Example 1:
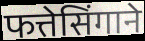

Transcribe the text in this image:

फत्तेसिंगाने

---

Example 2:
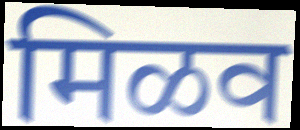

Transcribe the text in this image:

मिळव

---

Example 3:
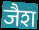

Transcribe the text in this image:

जैश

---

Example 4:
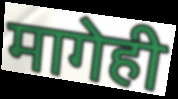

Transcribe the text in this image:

मागेही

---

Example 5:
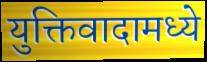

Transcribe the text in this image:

युक्तिवादामध्ये